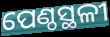
ପେଣ୍ଠସ୍ଥଳୀ